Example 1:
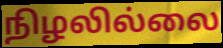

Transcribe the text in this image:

நிழலில்லை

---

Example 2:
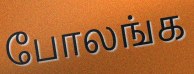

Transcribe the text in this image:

போலங்க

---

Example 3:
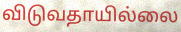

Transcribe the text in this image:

விடுவதாயில்லை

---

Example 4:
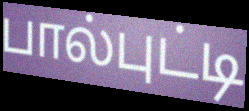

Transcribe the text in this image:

பால்புட்டி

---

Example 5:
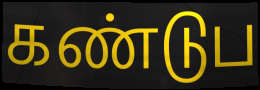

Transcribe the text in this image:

கண்டுப